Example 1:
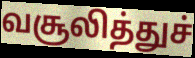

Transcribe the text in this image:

வசூலித்துச்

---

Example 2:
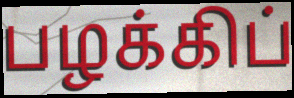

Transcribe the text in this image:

பழக்கிப்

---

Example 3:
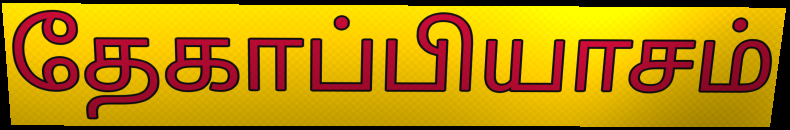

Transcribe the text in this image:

தேகாப்பியாசம்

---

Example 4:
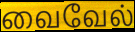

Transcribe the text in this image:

வைவேல்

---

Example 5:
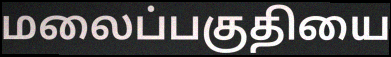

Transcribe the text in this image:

மலைப்பகுதியை